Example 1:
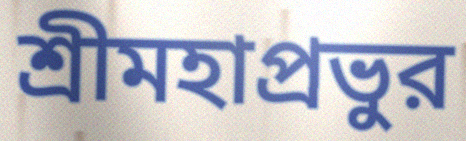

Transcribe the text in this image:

শ্রীমহাপ্রভুর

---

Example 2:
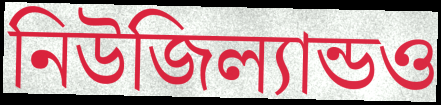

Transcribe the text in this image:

নিউজিল্যান্ডও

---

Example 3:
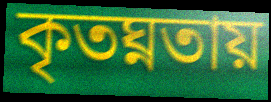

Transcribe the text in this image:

কৃতঘ্নতায়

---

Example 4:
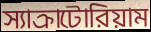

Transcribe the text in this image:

স্যাক্রাটোরিয়াম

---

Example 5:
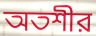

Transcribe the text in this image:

অতশীর